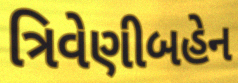
ત્રિવેણીબહેન